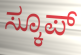
ಸ್ಕೂಪ್